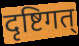
दृष्टिगत्